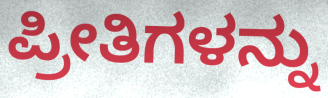
ಪ್ರೀತಿಗಳನ್ನು